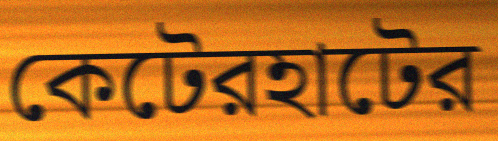
কেটেরহাটের